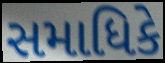
સમાધિકે